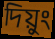
দিয়ুং